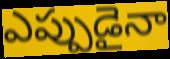
ఎప్పుడైనా